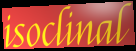
isoclinal